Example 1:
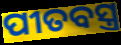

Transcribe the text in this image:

ପୀତବସ୍ତ୍ର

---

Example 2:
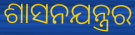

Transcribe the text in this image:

ଶାସନଯନ୍ତ୍ରର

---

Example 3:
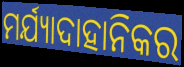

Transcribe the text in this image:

ମର୍ଯ୍ୟାଦାହାନିକର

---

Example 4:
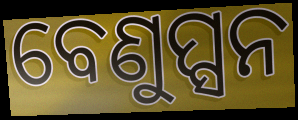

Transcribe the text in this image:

ବେଣୁପ୍ସନ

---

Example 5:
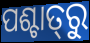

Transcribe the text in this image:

ପଶ୍ଚାତ୍‌ରୁ